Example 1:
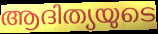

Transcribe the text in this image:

ആദിത്യയുടെ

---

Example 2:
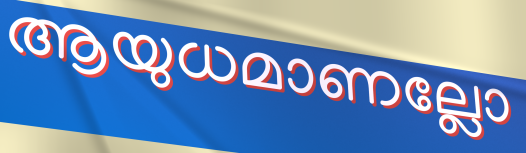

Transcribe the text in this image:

ആയുധമാണല്ലോ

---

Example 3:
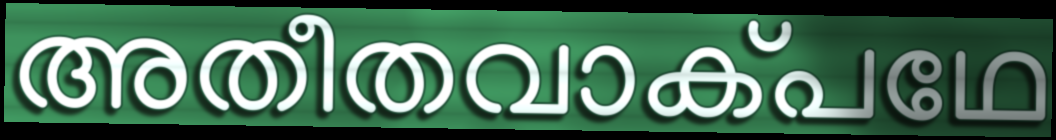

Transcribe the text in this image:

അതീതവാക്പഥേ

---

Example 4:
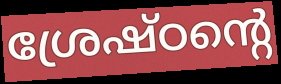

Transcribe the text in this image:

ശ്രേഷ്ഠന്റെ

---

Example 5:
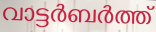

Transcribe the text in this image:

വാട്ടർബർത്ത്